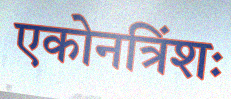
एकोनत्रिंशः